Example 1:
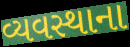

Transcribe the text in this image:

વ્યવસ્થાના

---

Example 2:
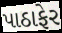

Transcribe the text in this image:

પાઠાફેર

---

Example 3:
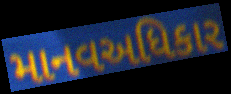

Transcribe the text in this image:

માનવઅધિકાર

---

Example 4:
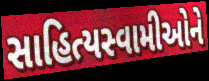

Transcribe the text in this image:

સાહિત્યસ્વામીઓને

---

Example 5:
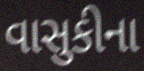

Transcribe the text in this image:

વાસુકીના